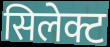
सिलेक्ट